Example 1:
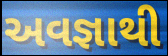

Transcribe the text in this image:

અવજ્ઞાથી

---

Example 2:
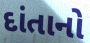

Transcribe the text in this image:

દાંતાનો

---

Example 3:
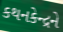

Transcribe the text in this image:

કથનકેન્દ્રને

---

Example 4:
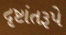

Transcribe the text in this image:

દૃષ્ટાંતરૂપે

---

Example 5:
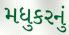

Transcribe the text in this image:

મધુકરનું